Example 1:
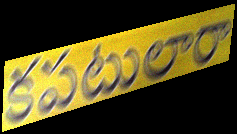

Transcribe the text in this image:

కపటులారా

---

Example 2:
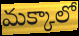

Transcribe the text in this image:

మక్కాలో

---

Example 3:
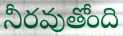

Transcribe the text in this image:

నీరవుతోంది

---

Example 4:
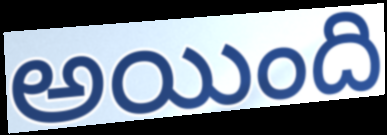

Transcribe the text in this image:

అయింది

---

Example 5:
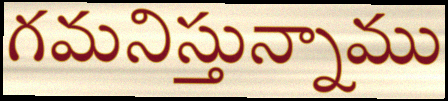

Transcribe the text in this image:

గమనిస్తున్నాము